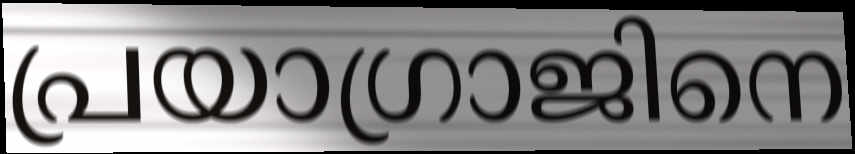
പ്രയാഗ്രാജിനെ